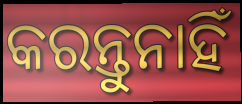
କରନ୍ତୁନାହିଁ